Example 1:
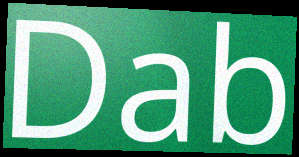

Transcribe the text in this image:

Dab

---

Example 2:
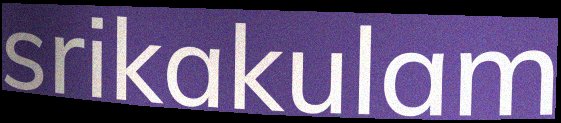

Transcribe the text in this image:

srikakulam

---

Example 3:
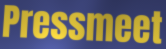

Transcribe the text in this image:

Pressmeet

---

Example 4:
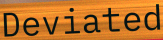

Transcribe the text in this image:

Deviated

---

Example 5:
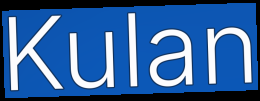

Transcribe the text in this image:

Kulan